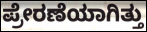
ಪ್ರೇರಣೆಯಾಗಿತ್ತು